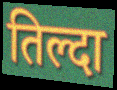
तिल्दा